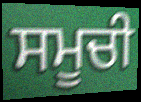
ਸਮੂਚੀ